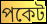
পকেট